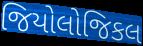
જિયોલોજિકલ